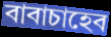
বাবাচাহেব